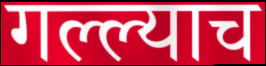
गल्ल्याच